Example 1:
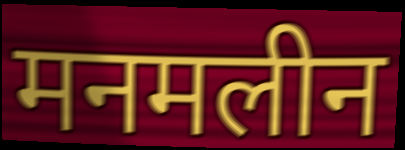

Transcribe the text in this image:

मनमलीन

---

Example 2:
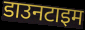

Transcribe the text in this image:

डाउनटाइम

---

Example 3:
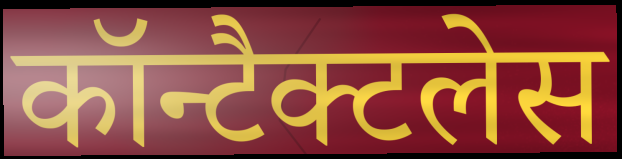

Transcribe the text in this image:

कॉन्टैक्टलेस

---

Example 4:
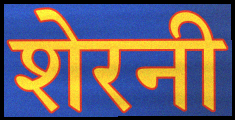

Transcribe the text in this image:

शेरनी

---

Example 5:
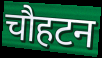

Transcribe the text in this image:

चौहटन